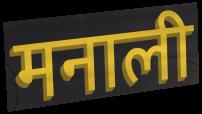
मनाली